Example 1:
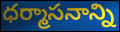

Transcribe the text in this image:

ధర్మాసనాన్ని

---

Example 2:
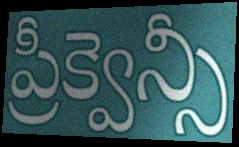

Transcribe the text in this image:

ప్రీక్వెన్సీ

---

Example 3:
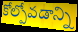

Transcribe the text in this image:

కోల్పోవడాన్ని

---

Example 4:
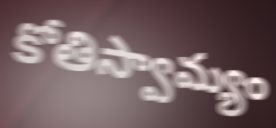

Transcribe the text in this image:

కోతిస్వామ్యం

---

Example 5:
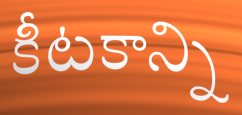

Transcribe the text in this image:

కీటకాన్ని